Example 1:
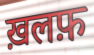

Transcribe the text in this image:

ख़लफ़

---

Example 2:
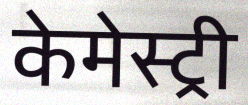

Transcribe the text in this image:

केमेस्ट्री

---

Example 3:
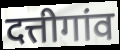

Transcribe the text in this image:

दत्तीगांव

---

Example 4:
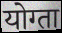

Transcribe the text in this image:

योग्ता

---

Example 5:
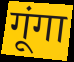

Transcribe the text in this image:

गूंगा